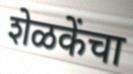
शेळकेंचा